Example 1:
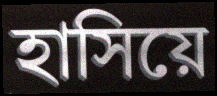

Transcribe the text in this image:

হাসিয়ে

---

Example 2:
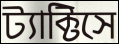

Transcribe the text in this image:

ট্যাক্টিসে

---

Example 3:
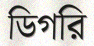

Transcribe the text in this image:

ডিগরি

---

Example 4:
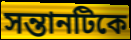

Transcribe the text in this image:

সন্তানটিকে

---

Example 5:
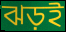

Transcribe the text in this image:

ঝড়ই